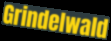
Grindelwald